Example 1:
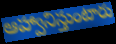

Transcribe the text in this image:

ఆహ్వానిస్తుంటారు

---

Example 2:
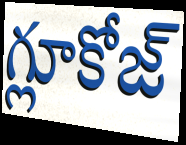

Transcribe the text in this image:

గ్లూకోజ్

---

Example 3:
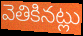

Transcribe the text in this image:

వెతికినట్లు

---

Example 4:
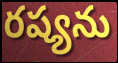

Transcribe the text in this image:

రష్యను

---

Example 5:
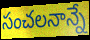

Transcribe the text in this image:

సంచలనాన్నే